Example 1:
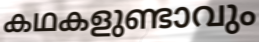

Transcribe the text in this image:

കഥകളുണ്ടാവും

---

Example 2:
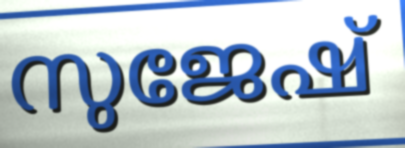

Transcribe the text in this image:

സുജേഷ്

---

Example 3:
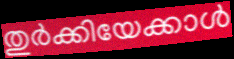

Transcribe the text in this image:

തുർക്കിയേക്കാൾ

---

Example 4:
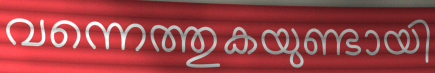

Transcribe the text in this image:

വന്നെത്തുകയുണ്ടായി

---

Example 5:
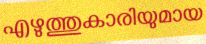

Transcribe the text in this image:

എഴുത്തുകാരിയുമായ